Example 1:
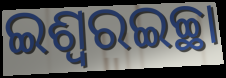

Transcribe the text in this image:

ଇଶ୍ୱରଇଚ୍ଛା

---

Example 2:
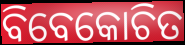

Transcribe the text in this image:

ବିବେକୋଚିତ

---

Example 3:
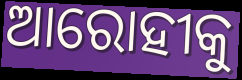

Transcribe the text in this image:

ଆରୋହୀକୁ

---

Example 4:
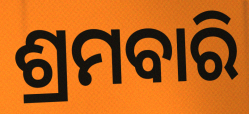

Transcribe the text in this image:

ଶ୍ରମବାରି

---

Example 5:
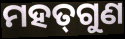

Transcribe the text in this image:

ମହତ୍‍ଗୁଣ